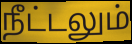
நீட்டலும்